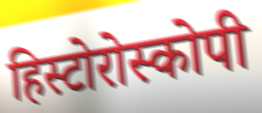
हिस्टोरोस्कोपी